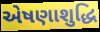
એષણાશુદ્ધિ